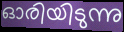
ഓരിയിടുന്നു